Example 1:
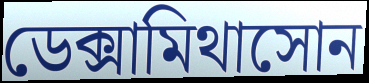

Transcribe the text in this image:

ডেক্সামিথাসোন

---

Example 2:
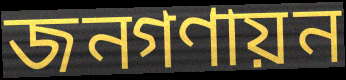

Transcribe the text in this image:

জনগণায়ন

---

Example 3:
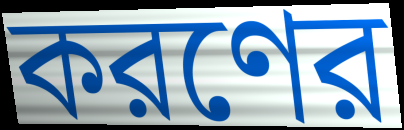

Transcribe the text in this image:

করণের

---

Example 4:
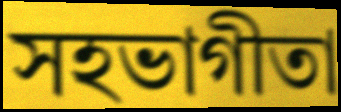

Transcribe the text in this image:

সহভাগীতা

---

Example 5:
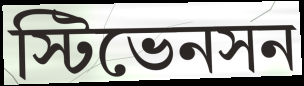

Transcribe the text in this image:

স্টিভেনসন